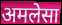
अमलेसा